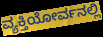
ವ್ಯಕ್ತಿಯೋರ್ವನಲ್ಲಿ